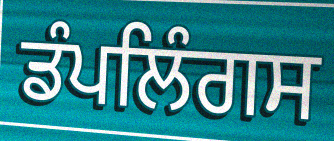
ਡੰਪਲਿੰਗਸ